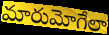
మారుమోగేలా